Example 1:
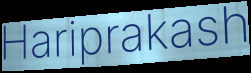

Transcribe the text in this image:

Hariprakash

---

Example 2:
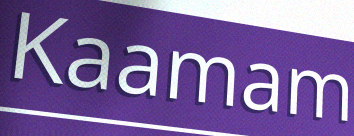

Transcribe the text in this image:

Kaamam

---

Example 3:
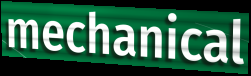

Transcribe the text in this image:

mechanical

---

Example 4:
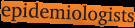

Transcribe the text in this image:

epidemiologists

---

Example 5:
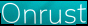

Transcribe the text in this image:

Onrust